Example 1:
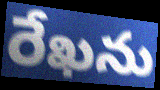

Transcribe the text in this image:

రేఖను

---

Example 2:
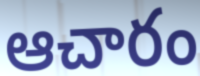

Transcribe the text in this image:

ఆచారం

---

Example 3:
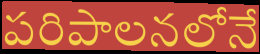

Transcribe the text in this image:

పరిపాలనలోనే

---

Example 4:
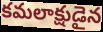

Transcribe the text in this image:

కమలాక్షుడైన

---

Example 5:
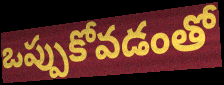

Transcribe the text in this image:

ఒప్పుకోవడంతో